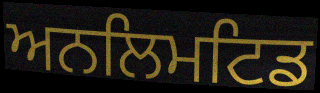
ਅਨਲਿਮਟਿਡ